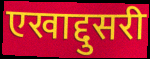
एखाद्दुसरी